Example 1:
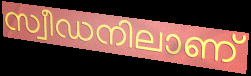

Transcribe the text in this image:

സ്വീഡനിലാണ്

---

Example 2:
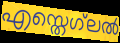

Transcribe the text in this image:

എസ്തെഗ്‌ലൽ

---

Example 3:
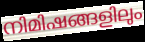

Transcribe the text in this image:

നിമിഷങ്ങളിലും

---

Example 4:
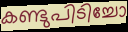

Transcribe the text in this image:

കണ്ടുപിടിച്ചോ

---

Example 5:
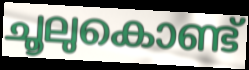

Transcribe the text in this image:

ചൂലുകൊണ്ട്